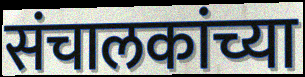
संचालकांच्या